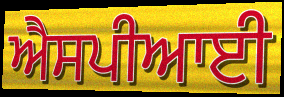
ਐਸਪੀਆਈ